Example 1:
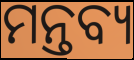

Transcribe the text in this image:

ମନ୍ତବ୍ଯ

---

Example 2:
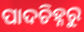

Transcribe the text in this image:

ପାଦଚିହ୍ନରୁ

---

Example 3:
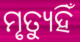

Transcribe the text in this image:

ମୃତ୍ୟୁହିଁ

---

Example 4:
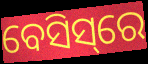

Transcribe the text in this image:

ବେସିସ୍‌ରେ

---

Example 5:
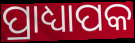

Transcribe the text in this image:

ପ୍ରାଧ୍ୟାପକ